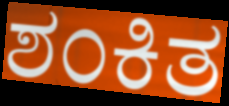
ಶಂಕಿತ